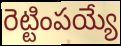
రెట్టింపయ్యే